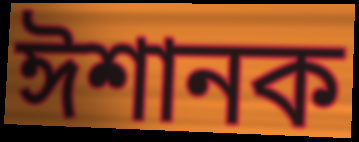
ঈশানক